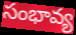
సంభావ్య